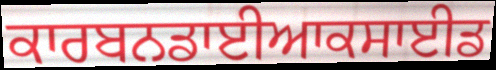
ਕਾਰਬਨਡਾਈਆਕਸਾਈਡ